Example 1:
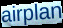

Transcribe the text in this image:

airplan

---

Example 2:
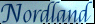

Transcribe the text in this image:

Nordland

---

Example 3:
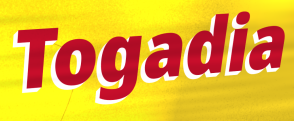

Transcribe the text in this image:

Togadia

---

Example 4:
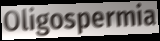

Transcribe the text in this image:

Oligospermia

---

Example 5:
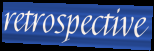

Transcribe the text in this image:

retrospective